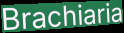
Brachiaria